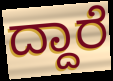
ದ್ದಾರೆ